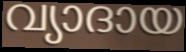
വ്യാദായ